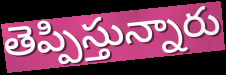
తెప్పిస్తున్నారు